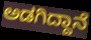
ಅಡಗಿದ್ದಾನೆ